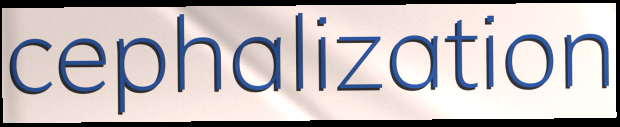
cephalization